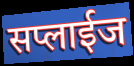
सप्लाईज